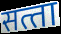
सत्‍ता